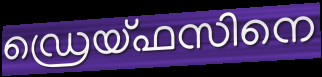
ഡ്രെയ്ഫസിനെ